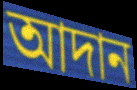
আদান